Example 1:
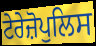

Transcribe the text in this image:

ਟੇਰੇਜ਼ੋਪੁਲਿਸ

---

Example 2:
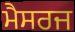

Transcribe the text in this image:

ਮੈਸਰਜ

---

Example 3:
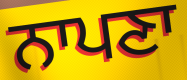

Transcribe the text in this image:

ਨਾਪਣਾ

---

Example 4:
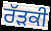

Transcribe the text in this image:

ਰੱੜਕੀ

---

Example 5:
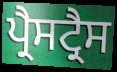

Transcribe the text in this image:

ਪ੍ਰੈਸਟ੍ਰੈਸ